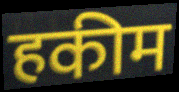
हकीम